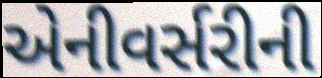
એનીવર્સરીની